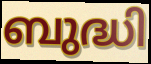
ബുദ്ധി